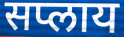
सप्लाय